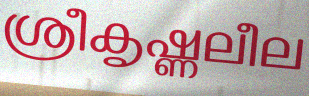
ശ്രീകൃഷ്ണലീല